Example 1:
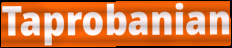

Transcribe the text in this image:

Taprobanian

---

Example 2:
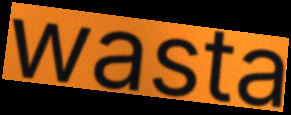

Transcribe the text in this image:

wasta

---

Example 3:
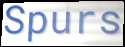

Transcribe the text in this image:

Spurs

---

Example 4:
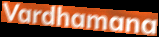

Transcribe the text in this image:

Vardhamana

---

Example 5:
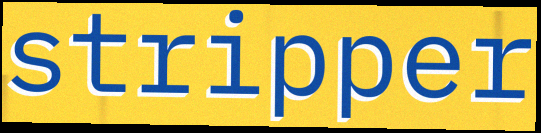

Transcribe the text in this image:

stripper